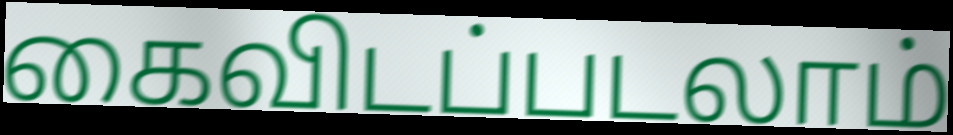
கைவிடப்படலாம்